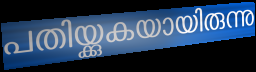
പതിയ്ക്കുകയായിരുന്നു